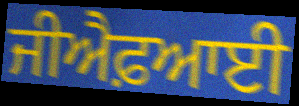
ਜੀਐਫ਼ਆਈ